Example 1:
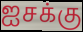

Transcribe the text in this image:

ஐசக்கு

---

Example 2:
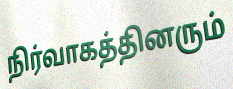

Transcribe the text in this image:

நிர்வாகத்தினரும்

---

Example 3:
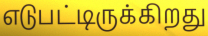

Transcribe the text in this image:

எடுபட்டிருக்கிறது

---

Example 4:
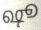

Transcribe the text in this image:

ஷூ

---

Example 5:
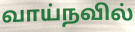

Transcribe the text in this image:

வாய்நவில்